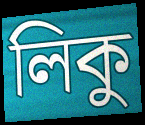
লিকু